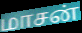
மாசன்